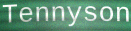
Tennyson